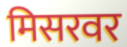
मिसरवर